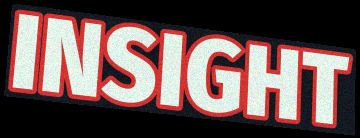
INSIGHT